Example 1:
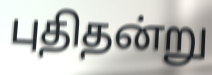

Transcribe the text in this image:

புதிதன்று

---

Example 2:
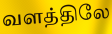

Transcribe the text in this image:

வளத்திலே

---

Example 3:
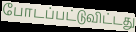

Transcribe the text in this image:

போடப்பட்டுவிட்டது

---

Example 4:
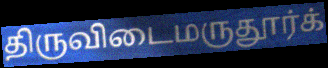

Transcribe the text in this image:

திருவிடைமருதூர்க்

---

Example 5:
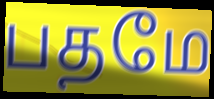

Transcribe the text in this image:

பதமே